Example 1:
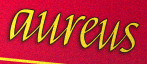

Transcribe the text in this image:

aureus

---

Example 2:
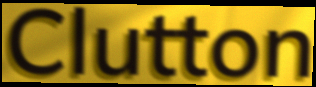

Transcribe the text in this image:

Clutton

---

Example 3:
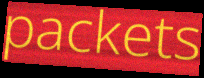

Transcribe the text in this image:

packets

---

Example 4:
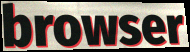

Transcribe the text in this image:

browser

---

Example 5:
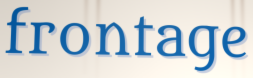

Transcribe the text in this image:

frontage